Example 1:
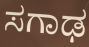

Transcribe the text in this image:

ಸಗಾಢ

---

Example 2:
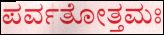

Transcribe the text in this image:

ಪರ್ವತೋತ್ತಮಃ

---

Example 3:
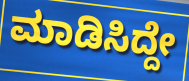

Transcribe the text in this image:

ಮಾಡಿಸಿದ್ದೇ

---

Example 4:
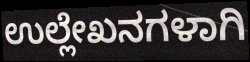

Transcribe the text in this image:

ಉಲ್ಲೇಖನಗಳಾಗಿ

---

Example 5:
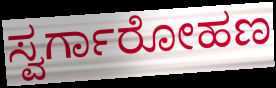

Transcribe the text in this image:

ಸ್ವರ್ಗಾರೋಹಣ